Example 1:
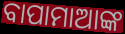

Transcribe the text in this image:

ବାପାମାଆଙ୍କ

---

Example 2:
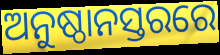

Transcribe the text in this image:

ଅନୁଷ୍ଠାନସ୍ତରରେ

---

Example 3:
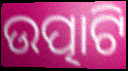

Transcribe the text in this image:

ଉତ୍ପାଟି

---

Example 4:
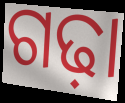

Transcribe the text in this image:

ଗଢ଼ା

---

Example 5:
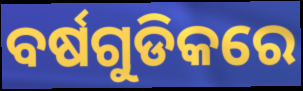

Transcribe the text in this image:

ବର୍ଷଗୁଡିକରେ